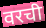
वरची